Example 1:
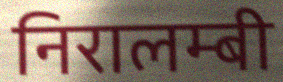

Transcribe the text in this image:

निरालम्बी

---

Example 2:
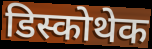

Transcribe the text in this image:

डिस्कोथेक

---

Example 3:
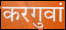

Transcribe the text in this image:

करगुवां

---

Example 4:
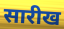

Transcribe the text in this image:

सारीख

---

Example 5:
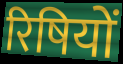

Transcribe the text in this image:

रिषियों